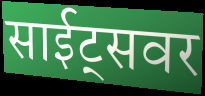
साईट्सवर